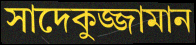
সাদেকুজ্জামান